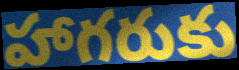
హాగరుకు